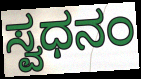
ಸ್ವಧನಂ